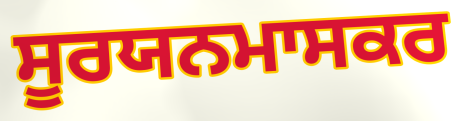
ਸੂਰਯਨਮਾਸਕਰ